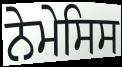
ਨੇਮੇਸਿਸ